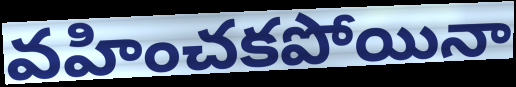
వహించకపోయినా